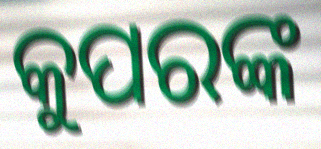
କୁପରଙ୍କ